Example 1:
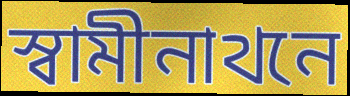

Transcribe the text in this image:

স্বামীনাথনে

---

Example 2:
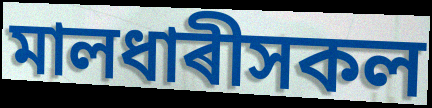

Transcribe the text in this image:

মালধাৰীসকল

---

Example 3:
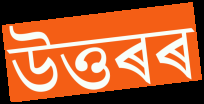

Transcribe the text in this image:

উত্তৰৰ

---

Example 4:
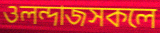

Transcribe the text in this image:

ওলন্দাজসকলে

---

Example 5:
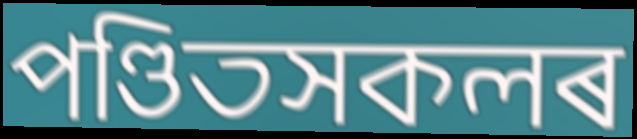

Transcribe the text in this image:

পণ্ডিতসকলৰ